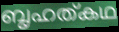
ബൃഹത്കഥ